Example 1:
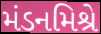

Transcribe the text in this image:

મંડનમિશ્રે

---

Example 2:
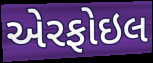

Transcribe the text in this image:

એરફોઇલ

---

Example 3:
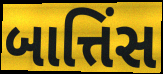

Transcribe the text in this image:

બાત્તિંસ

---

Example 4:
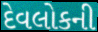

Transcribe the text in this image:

દેવલોકની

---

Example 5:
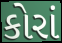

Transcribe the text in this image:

કોરાં